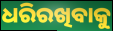
ଧରିରଖିବାକୁ